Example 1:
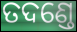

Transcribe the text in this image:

ତଦଣ୍ଡେ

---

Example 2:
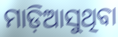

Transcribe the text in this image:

ମାଡ଼ିଆସୁଥିବା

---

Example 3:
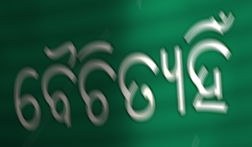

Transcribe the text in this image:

ବୈଚିତ୍ୟହିଁ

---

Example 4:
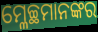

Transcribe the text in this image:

ମ୍ଳେଚ୍ଛମାନଙ୍କର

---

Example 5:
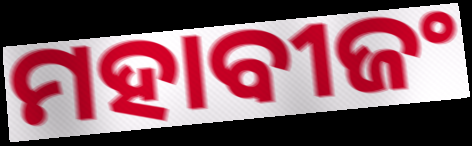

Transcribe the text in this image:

ମହାବୀଜଂ